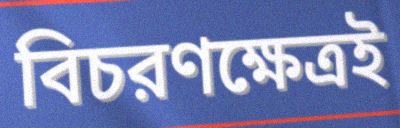
বিচরণক্ষেত্রই